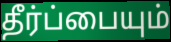
தீர்ப்பையும்